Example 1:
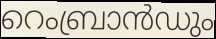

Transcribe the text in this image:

റെംബ്രാൻഡും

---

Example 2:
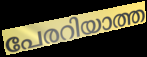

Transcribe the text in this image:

പേരറിയാത്ത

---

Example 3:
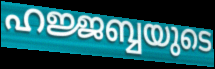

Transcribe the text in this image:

ഹജ്ജബ്ബയുടെ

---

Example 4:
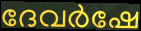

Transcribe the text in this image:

ദേവർഷേ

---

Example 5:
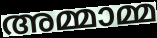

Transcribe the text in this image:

അമ്മാമ്മ